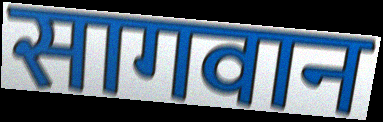
सागवान